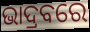
ଭାଦ୍ରବରେ